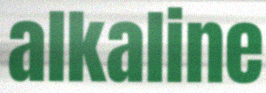
alkaline